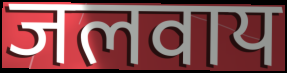
जलवाय